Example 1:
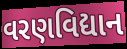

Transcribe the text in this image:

વરણવિદ્યાન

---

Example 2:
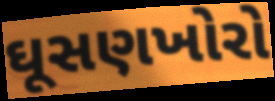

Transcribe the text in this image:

ઘૂસણખોરો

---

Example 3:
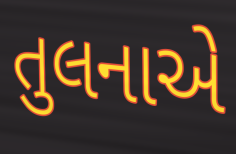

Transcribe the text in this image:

તુલનાએ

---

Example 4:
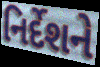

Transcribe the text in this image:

નિર્દેશને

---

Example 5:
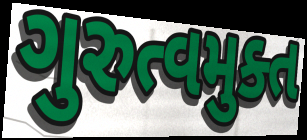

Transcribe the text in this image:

ગુરુત્વમુક્ત